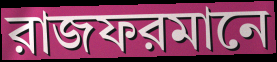
রাজফরমানে